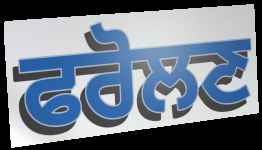
ਫਰੋਲਣ